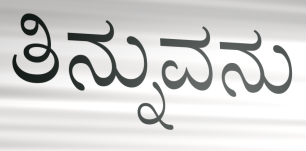
ತಿನ್ನುವನು